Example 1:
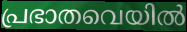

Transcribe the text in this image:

പ്രഭാതവെയിൽ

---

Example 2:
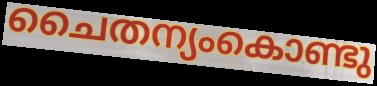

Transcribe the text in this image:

ചൈതന്യംകൊണ്ടു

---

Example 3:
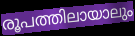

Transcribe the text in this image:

രൂപത്തിലായാലും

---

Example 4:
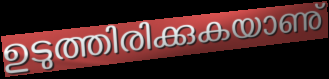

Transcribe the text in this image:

ഉടുത്തിരിക്കുകയാണു്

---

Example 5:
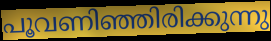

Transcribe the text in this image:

പൂവണിഞ്ഞിരിക്കുന്നു